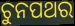
ଚୁନପଥର